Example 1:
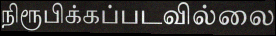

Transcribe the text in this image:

நிரூபிக்கப்படவில்லை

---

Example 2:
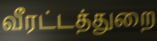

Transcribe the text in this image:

வீரட்டத்துறை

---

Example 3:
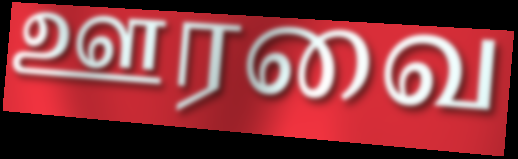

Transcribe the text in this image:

ஊரவை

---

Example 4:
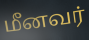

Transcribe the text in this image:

மீனவர்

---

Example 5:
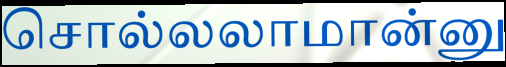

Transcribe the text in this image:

சொல்லலாமான்னு